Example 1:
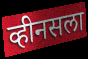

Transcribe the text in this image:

व्हीनसला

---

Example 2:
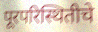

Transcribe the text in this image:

पूरपरिस्थितीचे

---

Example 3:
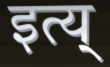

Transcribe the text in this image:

इत्य्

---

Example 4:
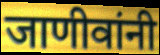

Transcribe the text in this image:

जाणीवांनी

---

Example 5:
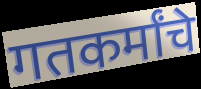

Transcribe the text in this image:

गतकर्मांचे